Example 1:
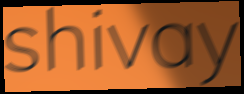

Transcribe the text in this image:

shivay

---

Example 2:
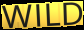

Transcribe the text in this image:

WILD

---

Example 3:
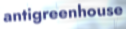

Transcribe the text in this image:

antigreenhouse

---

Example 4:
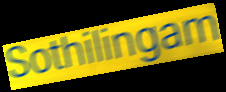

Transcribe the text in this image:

Sothilingam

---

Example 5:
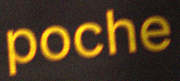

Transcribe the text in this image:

poche